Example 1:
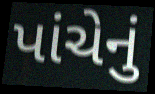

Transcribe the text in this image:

પાંચેનું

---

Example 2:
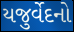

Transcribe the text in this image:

યજુર્વેદનો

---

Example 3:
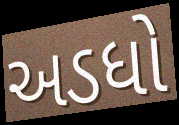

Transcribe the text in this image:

અડધો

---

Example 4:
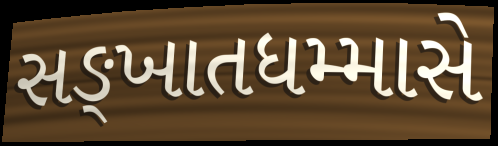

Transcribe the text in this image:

સઙ્ખાતધમ્માસે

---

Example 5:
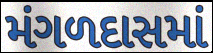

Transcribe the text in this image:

મંગળદાસમાં